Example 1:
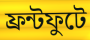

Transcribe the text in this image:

ফ্রন্টফুটে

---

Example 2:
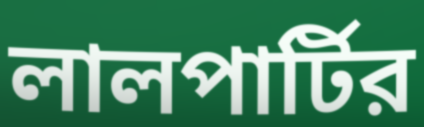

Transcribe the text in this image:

লালপার্টির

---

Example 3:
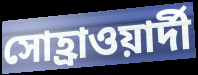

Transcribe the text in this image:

সোহ্রাওয়ার্দী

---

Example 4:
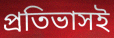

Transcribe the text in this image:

প্রতিভাসই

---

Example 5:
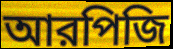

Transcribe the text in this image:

আরপিজি